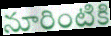
నూరింటికి